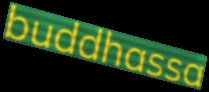
buddhassa